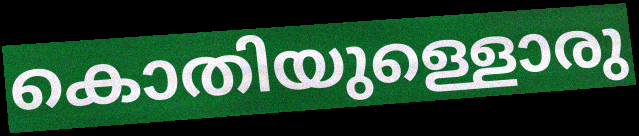
കൊതിയുള്ളൊരു